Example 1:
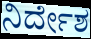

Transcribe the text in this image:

ನಿರ್ದೇಶ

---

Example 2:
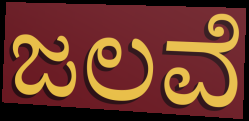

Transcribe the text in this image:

ಜಲವೆ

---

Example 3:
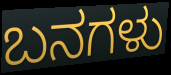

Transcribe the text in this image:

ಬನಗಳು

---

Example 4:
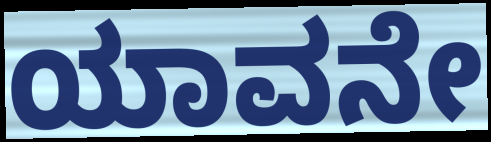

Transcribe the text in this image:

ಯಾವನೇ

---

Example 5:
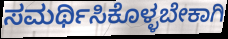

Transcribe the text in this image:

ಸಮರ್ಥಿಸಿಕೊಳ್ಳಬೇಕಾಗಿ